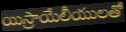
యిస్రాయేలీయులతో